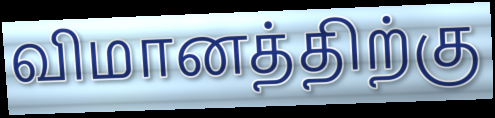
விமானத்திற்கு